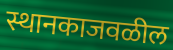
स्थानकाजवळील